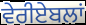
ਵੇਰੀਏਬਲਾਂ